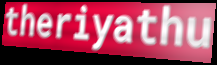
theriyathu